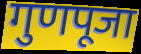
गुणपूजा